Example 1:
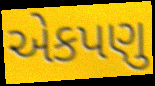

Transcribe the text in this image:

એકપણુ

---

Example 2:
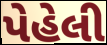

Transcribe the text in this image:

પેહેલી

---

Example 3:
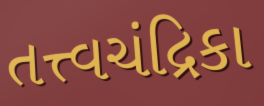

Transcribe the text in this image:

તત્ત્વચંદ્રિકા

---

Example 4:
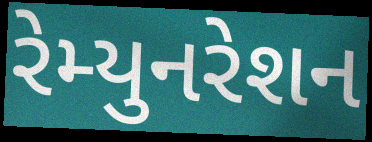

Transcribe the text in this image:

રેમ્યુનરેશન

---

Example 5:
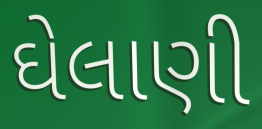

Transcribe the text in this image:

ઘેલાણી